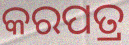
କରପତ୍ର